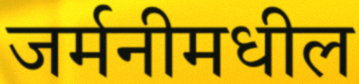
जर्मनीमधील